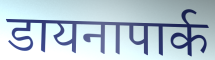
डायनापार्क